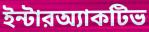
ইন্টারঅ্যাকটিভ